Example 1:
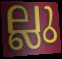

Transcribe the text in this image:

ല്ലു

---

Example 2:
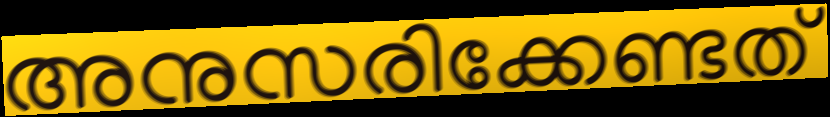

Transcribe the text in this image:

അനുസരിക്കേണ്ടത്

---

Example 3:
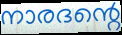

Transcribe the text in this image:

നാരദന്റെ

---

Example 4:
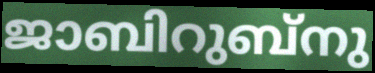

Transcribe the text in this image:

ജാബിറുബ്നു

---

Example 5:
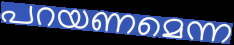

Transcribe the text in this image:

പറയണമെന്ന